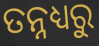
ତନ୍ନଧ୍ୟରୁ